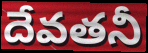
దేవతనీ